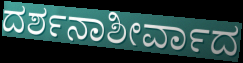
ದರ್ಶನಾಶೀರ್ವಾದ